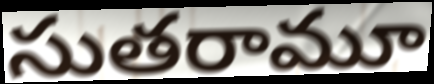
సుతరామూ